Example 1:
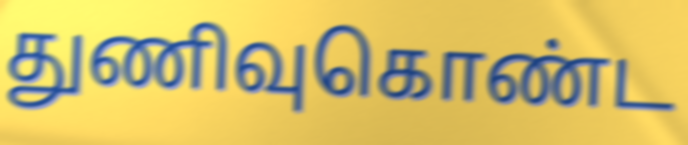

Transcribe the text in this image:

துணிவுகொண்ட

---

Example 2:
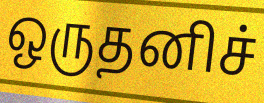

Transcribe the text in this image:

ஒருதனிச்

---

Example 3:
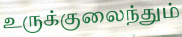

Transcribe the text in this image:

உருக்குலைந்தும்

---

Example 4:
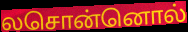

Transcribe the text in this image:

லசொன்னொல்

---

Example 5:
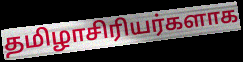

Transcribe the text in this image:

தமிழாசிரியர்களாக